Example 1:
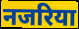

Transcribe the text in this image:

नजरिया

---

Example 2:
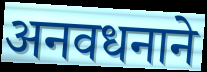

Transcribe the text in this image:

अनवधनाने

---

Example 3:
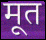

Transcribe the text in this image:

मूत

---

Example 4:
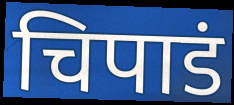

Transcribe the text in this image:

चिपाडं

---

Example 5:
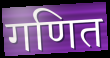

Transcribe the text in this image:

गणित